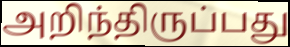
அறிந்திருப்பது